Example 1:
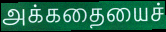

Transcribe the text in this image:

அக்கதையைச்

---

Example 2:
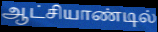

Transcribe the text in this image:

ஆட்சியாண்டில்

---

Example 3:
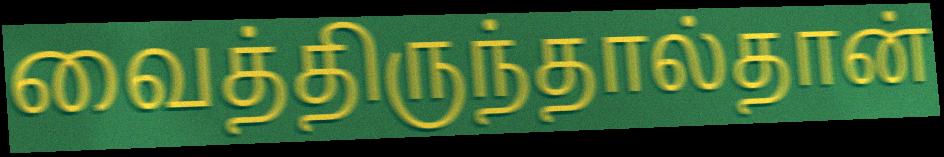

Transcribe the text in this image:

வைத்திருந்தால்தான்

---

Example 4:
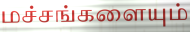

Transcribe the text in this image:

மச்சங்களையும்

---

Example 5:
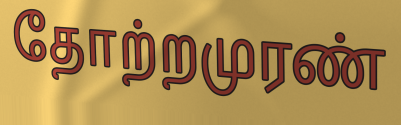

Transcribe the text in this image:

தோற்றமுரண்